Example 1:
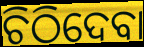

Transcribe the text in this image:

ଚିଠିଦେବା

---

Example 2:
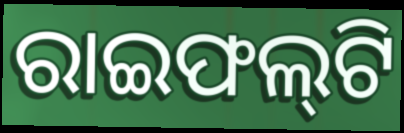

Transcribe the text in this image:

ରାଇଫଲ୍‌ଟି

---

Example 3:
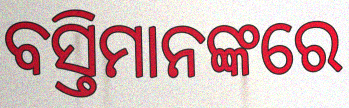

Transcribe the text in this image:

ବସ୍ତିମାନଙ୍କରେ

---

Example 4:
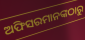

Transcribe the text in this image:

ଅଫିସରମାନଙ୍କଠାରୁ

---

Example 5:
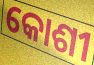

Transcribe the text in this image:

କୋଶୀ